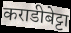
कराडीबेट्टा